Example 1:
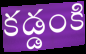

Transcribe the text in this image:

కడ్డంకి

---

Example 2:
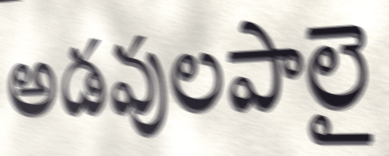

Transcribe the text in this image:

అడవులపాలై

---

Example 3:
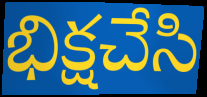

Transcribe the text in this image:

భిక్షచేసి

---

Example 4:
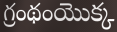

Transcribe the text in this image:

గ్రంథంయొక్క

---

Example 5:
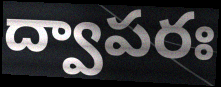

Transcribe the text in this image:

ద్వాపరః